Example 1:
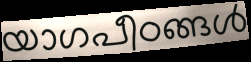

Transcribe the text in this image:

യാഗപീഠങ്ങൾ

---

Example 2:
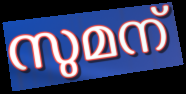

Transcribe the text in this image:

സുമന്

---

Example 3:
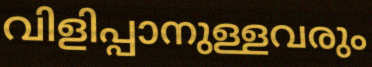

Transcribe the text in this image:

വിളിപ്പാനുള്ളവരും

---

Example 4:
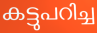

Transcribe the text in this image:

കട്ടുപറിച്ച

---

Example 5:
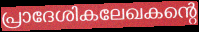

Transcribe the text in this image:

പ്രാദേശികലേഖകന്റെ